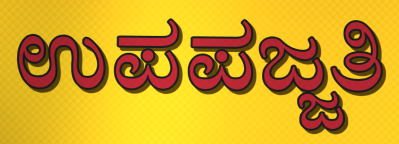
ಉಪಪಜ್ಜತಿ